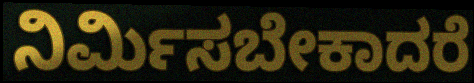
ನಿರ್ಮಿಸಬೇಕಾದರೆ